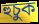
হুচুক